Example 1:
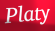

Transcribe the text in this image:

Platy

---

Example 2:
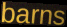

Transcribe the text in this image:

barns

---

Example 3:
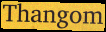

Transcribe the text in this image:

Thangom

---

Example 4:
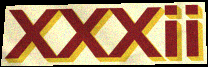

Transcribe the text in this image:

XXXii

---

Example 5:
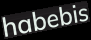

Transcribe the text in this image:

habebis